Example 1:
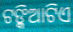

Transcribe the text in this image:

ଟଙ୍କିଆଟିଏ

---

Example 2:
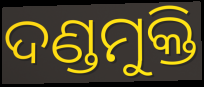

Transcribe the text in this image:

ଦଣ୍ଡମୁକ୍ତି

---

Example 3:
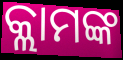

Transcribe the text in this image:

କ୍ଲାମଙ୍କ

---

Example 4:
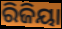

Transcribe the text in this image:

ରିଜିୟା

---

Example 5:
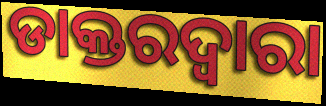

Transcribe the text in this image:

ଡାକ୍ତରଦ୍ୱାରା